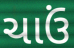
ચાઉં